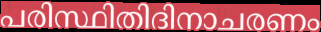
പരിസ്ഥിതിദിനാചരണം